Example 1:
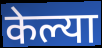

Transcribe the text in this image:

केल्या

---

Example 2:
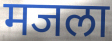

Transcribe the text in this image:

मजला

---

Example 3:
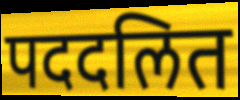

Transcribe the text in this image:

पददलित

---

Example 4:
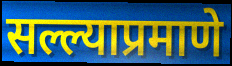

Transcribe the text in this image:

सल्ल्याप्रमाणे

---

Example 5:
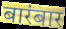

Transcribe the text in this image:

बारंबार